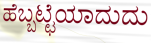
ಹೆಬ್ಬಟ್ಟೆಯಾದುದು